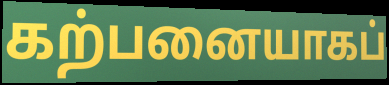
கற்பனையாகப்